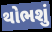
થોભશું